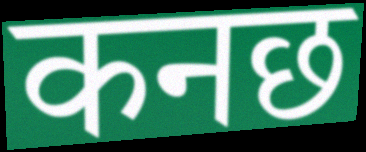
कनछ